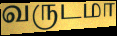
வருடமா